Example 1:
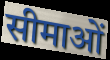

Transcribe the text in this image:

सीमाओं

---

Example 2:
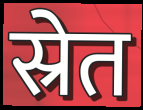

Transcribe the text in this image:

स्रेत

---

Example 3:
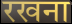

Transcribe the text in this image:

रखना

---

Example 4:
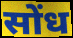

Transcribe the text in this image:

सोंध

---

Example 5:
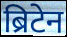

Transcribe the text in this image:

ब्रिटेन